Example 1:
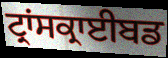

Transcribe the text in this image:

ਟ੍ਰਾਂਸਕ੍ਰਾਈਬਡ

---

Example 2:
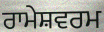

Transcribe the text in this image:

ਰਾਮੇਸ਼ਵਰਮ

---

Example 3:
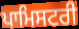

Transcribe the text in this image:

ਪਾਮਿਸਟਰੀ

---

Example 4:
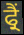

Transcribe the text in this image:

ਫ੍ਰੈਂ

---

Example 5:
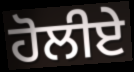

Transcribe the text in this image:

ਹੋਲੀਏ